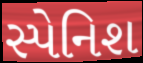
સ્પેનિશ